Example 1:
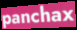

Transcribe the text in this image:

panchax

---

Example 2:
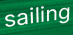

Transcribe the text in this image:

sailing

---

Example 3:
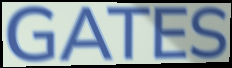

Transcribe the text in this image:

GATES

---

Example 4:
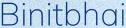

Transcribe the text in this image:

Binitbhai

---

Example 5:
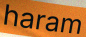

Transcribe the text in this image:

haram